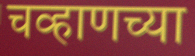
चव्हाणच्या